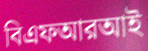
বিএফআরআই